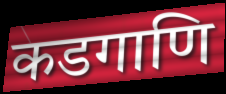
कडगाणि